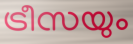
ട്രീസയും